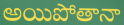
అయిపోతానా